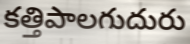
కత్తిపాలగుదురు